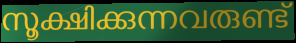
സൂക്ഷിക്കുന്നവരുണ്ട്